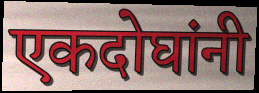
एकदोघांनी